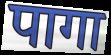
पागा